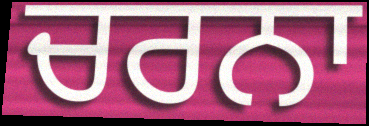
ਚਰਨਾ